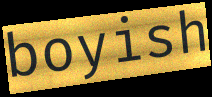
boyish